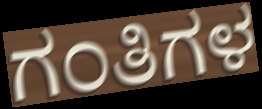
ಗಂತಿಗಳ